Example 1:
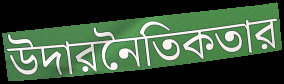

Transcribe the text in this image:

উদারনৈতিকতার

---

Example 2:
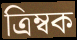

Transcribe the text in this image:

ত্রিম্বক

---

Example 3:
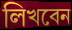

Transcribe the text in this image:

লিখবেন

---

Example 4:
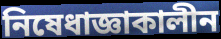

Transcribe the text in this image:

নিষেধাজ্ঞাকালীন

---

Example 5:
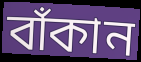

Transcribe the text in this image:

বাঁকান